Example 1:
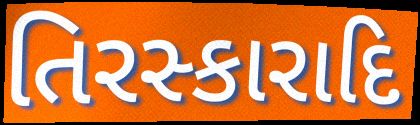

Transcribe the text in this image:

તિરસ્કારાદિ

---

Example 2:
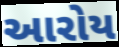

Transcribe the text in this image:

આરોય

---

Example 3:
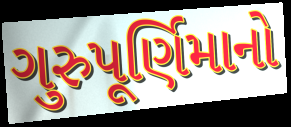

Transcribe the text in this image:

ગુરુપૂર્ણિમાનો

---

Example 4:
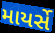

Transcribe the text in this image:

માયર્સે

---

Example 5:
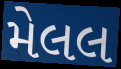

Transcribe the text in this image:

મેલલ